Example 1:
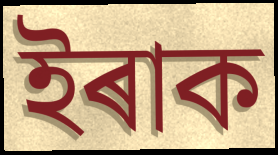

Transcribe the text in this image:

ইৰাক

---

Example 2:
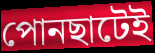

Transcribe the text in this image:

পোনছাটেই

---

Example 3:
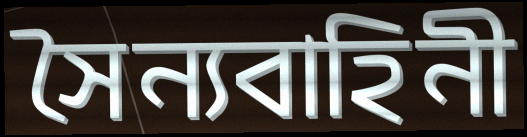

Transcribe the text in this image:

সৈন্যবাহিনী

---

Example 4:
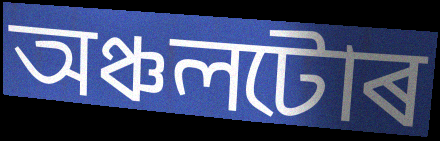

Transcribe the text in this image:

অঞ্চলটোৰ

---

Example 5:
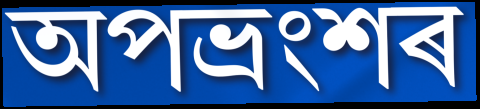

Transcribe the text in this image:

অপভ্ৰংশৰ